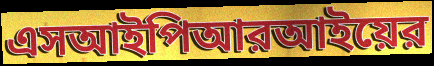
এসআইপিআরআইয়ের